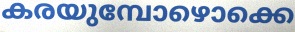
കരയുമ്പോഴൊക്കെ